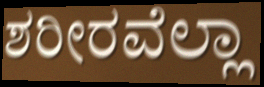
ಶರೀರವೆಲ್ಲಾ